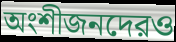
অংশীজনদেরও